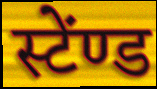
स्टेंण्ड